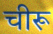
चीरू